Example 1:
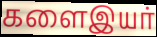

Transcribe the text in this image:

களைஇயர்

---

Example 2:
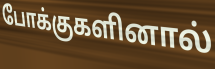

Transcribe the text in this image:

போக்குகளினால்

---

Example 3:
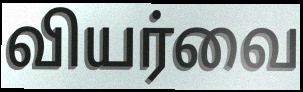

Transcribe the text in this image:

வியர்வை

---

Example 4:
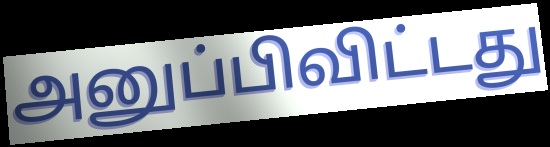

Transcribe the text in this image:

அனுப்பிவிட்டது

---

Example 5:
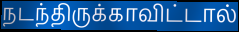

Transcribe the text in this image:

நடந்திருக்காவிட்டால்